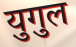
युगुल